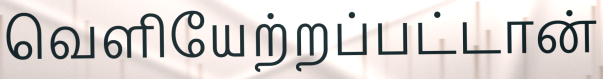
வெளியேற்றப்பட்டான்